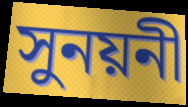
সুনয়নী